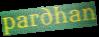
pardhan